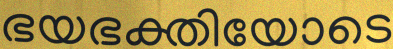
ഭയഭക്തിയോടെ